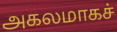
அகலமாகச்